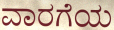
ವಾರಗೆಯ